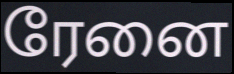
ரேனை